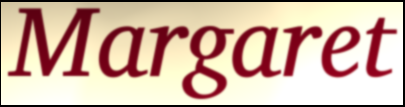
Margaret